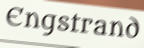
Engstrand